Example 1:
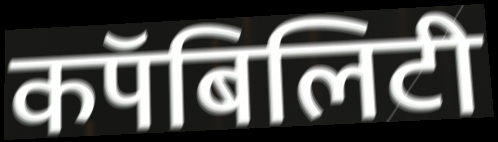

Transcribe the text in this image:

कपॅबिलिटी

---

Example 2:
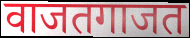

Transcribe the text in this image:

वाजतगाजत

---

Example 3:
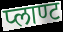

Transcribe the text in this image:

प्लाण्ट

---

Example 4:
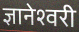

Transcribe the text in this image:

ज्ञानेश्वरी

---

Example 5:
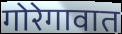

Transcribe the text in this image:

गोरेगावात